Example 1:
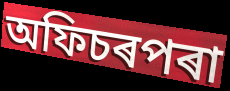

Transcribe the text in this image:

অফিচৰপৰা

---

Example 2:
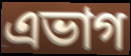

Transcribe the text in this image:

এভাগ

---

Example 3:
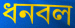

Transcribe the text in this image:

ধনবল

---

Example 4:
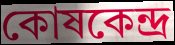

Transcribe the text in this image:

কোষকেন্দ্ৰ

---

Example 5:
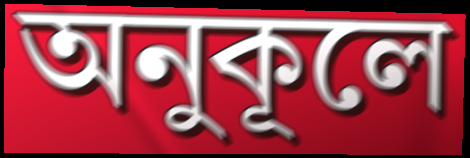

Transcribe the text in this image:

অনুকূলে